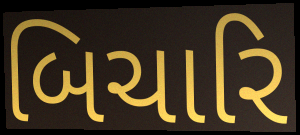
બિચારિ